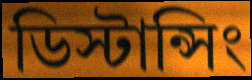
ডিস্টান্সিং